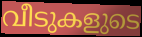
വീടുകളുടെ